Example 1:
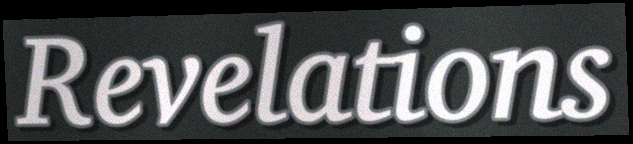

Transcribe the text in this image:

Revelations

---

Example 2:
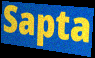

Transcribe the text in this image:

Sapta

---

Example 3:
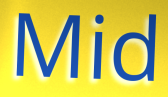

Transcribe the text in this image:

Mid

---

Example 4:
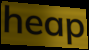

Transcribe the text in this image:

heap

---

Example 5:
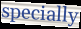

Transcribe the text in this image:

specially